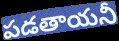
పడతాయనీ